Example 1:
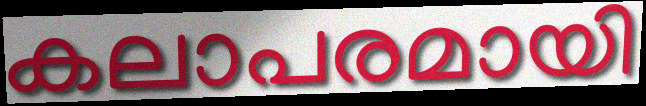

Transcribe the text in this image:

കലാപരമായി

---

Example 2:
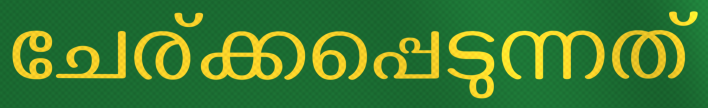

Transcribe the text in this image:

ചേര്ക്കപ്പെടുന്നത്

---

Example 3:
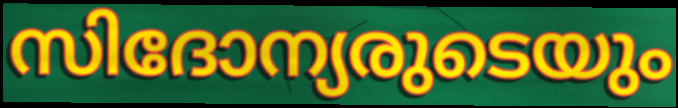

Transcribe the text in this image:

സിദോന്യരുടെയും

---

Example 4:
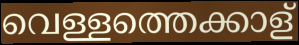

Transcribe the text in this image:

വെള്ളത്തെക്കാള്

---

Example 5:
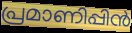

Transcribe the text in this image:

പ്രമാണിപ്പിൻ